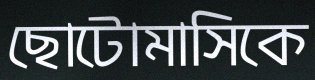
ছোটোমাসিকে